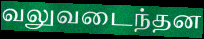
வலுவடைந்தன